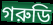
গরুডি